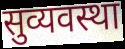
सुव्यवस्था